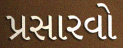
પ્રસારવો